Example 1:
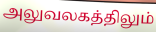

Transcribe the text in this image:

அலுவலகத்திலும்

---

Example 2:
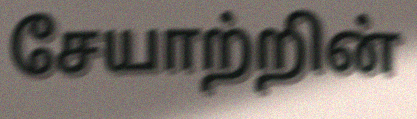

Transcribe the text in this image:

சேயாற்றின்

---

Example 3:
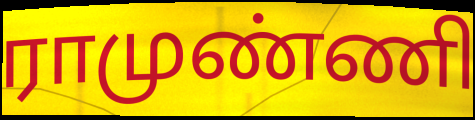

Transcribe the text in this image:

ராமுண்ணி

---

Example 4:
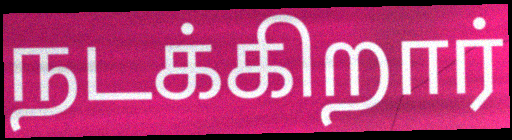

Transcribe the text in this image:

நடக்கிறார்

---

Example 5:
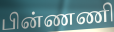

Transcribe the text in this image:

பின்ணணி